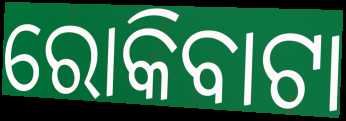
ରୋକିବାଟା